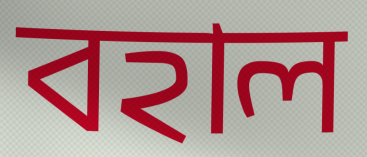
বহাল